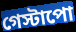
গেস্টাপো